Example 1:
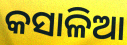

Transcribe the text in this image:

କସାଳିଆ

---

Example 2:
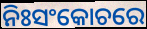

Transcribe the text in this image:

ନିଃସଂକୋଚରେ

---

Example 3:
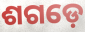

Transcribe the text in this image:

ଶଗଡ଼େ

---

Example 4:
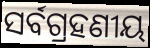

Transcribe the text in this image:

ସର୍ବଗ୍ରହଣୀୟ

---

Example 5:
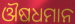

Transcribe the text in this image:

ଔଷଧମାନ